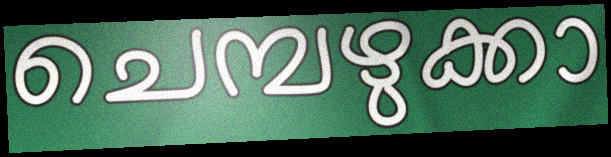
ചെമ്പഴുക്കാ